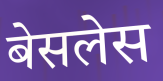
बेसलेस